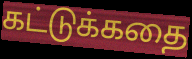
கட்டுக்கதை